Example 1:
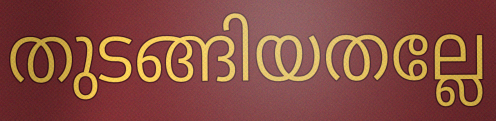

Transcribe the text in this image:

തുടങ്ങിയതല്ലേ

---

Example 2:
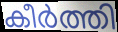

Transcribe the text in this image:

കീർത്തി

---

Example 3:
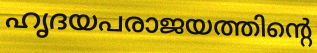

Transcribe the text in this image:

ഹൃദയപരാജയത്തിന്റെ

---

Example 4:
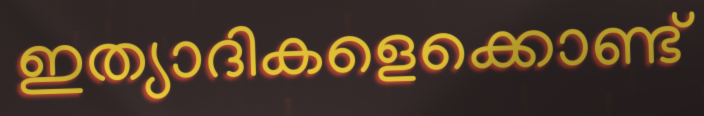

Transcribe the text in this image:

ഇത്യാദികളെക്കൊണ്ട്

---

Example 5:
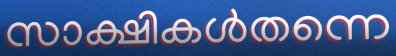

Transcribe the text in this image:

സാക്ഷികൾതന്നെ